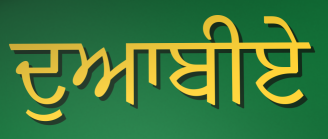
ਦੁਆਬੀਏ